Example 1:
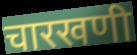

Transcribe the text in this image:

चारखणी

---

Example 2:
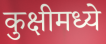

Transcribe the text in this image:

कुक्षीमध्ये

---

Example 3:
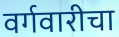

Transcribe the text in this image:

वर्गवारीचा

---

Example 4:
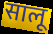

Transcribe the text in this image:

सालू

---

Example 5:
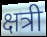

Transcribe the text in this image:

क्षत्री